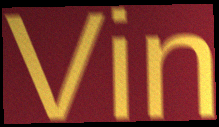
Vin